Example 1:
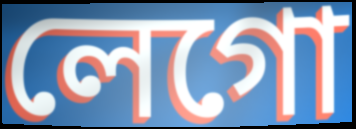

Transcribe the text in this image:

লেগো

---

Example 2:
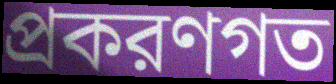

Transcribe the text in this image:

প্রকরণগত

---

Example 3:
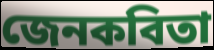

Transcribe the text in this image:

জেনকবিতা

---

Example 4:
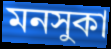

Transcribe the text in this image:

মনসুকা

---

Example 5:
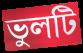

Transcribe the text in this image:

ভুলটি